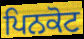
ਪਿਨਕੋਟ